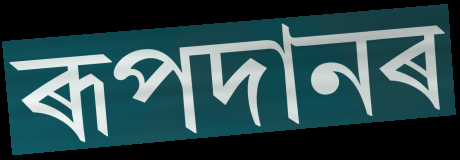
ৰূপদানৰ